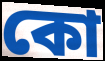
কো